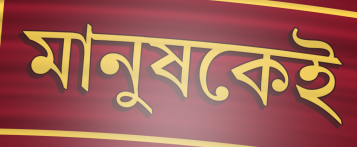
মানুষকেই